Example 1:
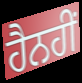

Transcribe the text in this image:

ਹੈਨਹੀਂ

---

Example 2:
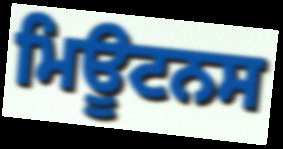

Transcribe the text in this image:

ਮਿਊਟਨਸ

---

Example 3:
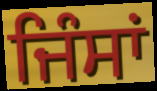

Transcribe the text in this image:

ਜਿੰਸਾਂ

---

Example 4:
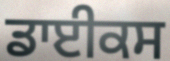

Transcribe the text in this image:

ਡਾਈਕਸ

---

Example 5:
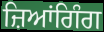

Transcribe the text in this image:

ਜ਼ਿਆਂਗਿੰਗ